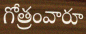
గోత్రంవారూ